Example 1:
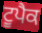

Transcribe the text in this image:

ਟੂਪੈਕ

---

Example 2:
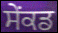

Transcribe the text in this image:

ਸੇਂਕਡ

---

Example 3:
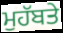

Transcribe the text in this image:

ਮੁਹੱਬਤੇ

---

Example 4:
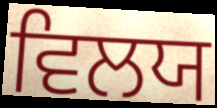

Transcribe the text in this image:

ਵਿਲਯ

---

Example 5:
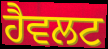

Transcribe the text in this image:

ਹੈਵਲਟ